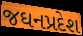
જઘનપ્રદેશ